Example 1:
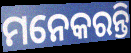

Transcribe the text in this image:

ମନେକରନ୍ତି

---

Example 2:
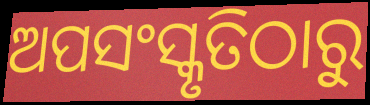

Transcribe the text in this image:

ଅପସଂସ୍କୃତିଠାରୁ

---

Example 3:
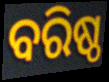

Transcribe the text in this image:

ବରିଷ୍ଠ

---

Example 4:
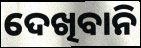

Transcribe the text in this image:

ଦେଖିବାନି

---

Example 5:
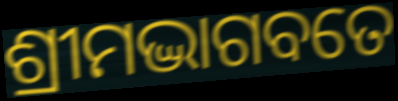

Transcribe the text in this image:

ଶ୍ରୀମଦ୍ଭାଗବତେ